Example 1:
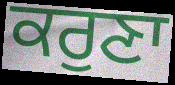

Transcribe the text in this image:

ਕਰੁਣਾ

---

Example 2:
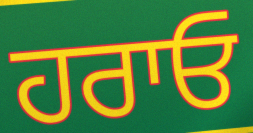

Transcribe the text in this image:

ਹਰਾਓ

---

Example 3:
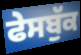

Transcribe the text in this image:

ਫੇਸਬੁੱਕ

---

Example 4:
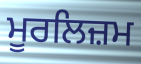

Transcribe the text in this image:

ਮੂਰਲਿਜ਼ਮ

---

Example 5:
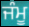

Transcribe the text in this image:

ਜੰਮੂ